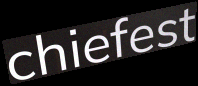
chiefest